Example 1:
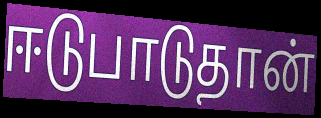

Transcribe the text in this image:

ஈடுபாடுதான்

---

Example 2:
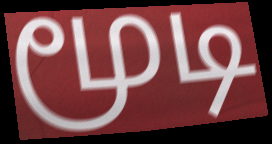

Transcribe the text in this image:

மூடி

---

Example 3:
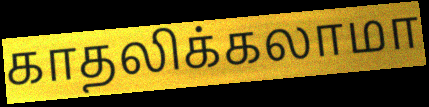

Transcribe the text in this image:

காதலிக்கலாமா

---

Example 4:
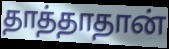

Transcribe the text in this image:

தாத்தாதான்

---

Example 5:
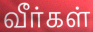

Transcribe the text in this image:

வீர்கள்